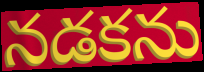
నడకను